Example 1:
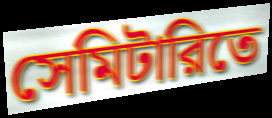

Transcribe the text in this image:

সেমিটারিতে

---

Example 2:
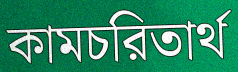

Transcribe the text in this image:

কামচরিতার্থ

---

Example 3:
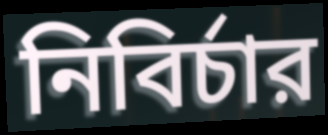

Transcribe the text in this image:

নিবির্চার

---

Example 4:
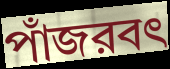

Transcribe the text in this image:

পাঁজরবৎ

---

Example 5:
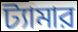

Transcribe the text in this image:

ট্যামার